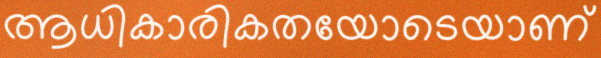
ആധികാരികതയോടെയാണ്